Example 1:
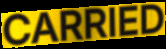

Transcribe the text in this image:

CARRIED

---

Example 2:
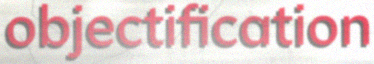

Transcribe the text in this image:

objectification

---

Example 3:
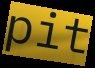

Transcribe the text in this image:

pit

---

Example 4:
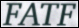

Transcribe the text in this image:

FATF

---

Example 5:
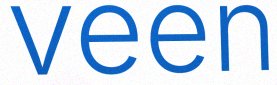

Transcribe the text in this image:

veen